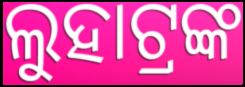
ଲୁହାଟ୍ରଙ୍କ